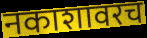
नकाशावरच